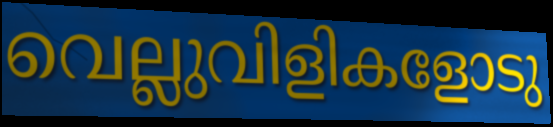
വെല്ലുവിളികളോടു